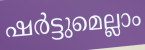
ഷർട്ടുമെല്ലാം